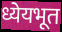
ध्येयभूत